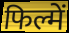
फिल्में